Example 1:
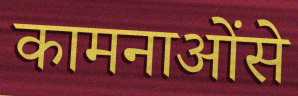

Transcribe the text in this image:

कामनाओंसे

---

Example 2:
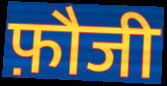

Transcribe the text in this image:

फ़ौजी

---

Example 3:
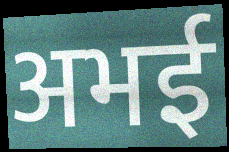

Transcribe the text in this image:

अभई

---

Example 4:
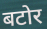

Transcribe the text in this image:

बटोर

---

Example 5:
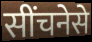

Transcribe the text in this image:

सींचनेसे